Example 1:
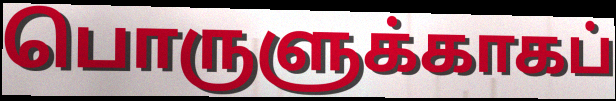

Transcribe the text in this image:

பொருளுக்காகப்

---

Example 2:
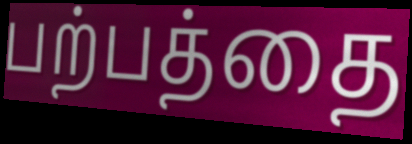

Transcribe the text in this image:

பற்பத்தை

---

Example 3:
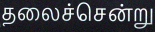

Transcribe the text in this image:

தலைச்சென்று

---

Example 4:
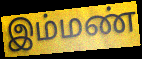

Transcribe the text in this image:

இம்மண்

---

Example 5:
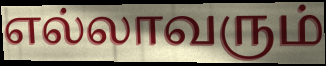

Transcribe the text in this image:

எல்லாவரும்